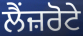
ਲੈਂਜ਼ਰੋਟੇ